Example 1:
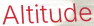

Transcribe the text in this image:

Altitude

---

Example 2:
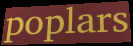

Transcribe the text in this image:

poplars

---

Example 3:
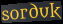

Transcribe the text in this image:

sorduk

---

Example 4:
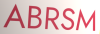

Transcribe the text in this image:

ABRSM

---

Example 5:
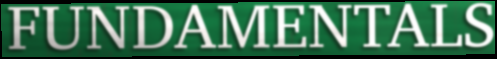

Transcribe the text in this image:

FUNDAMENTALS